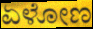
ಏಳೋಣ